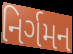
નિર્ગમન